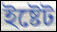
ইষ্টেট